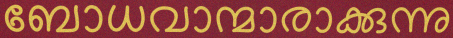
ബോധവാന്മാരാക്കുന്നു